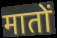
मातों